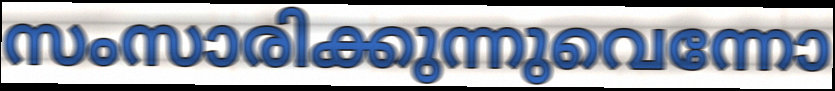
സംസാരിക്കുന്നുവെന്നോ